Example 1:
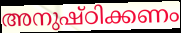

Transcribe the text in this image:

അനുഷ്ഠിക്കണം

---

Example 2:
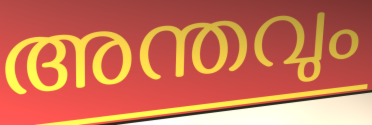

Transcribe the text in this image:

അന്തവും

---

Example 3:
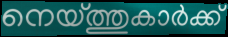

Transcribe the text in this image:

നെയ്ത്തുകാർക്ക്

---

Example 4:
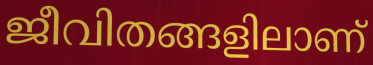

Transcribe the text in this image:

ജീവിതങ്ങളിലാണ്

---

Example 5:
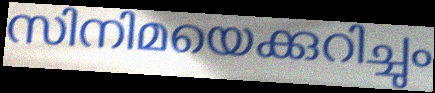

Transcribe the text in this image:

സിനിമയെക്കുറിച്ചും